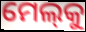
ମେଲ୍‌କୁ